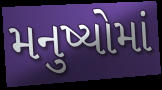
મનુષ્યોમાં